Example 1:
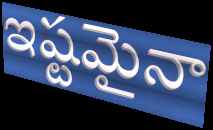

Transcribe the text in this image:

ఇష్టమైనా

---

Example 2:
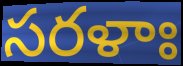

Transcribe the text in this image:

సరళాః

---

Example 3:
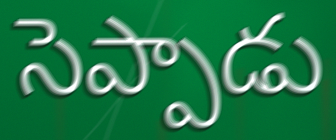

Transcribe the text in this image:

సెప్పాడు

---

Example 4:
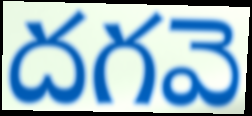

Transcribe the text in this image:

దగవె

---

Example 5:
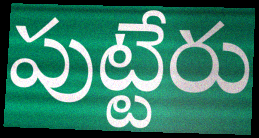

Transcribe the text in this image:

పుట్టేరు